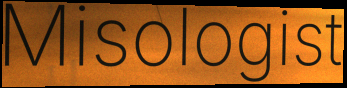
Misologist